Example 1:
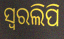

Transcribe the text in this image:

ସ୍ଵରଲିପି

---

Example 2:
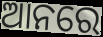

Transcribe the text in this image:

ଆନରେ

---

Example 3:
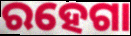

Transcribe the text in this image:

ରହେଗା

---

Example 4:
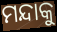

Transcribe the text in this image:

ମନ୍ଦାକୁ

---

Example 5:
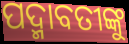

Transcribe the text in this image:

ପଦ୍ମାବତୀଙ୍କୁ